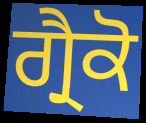
ਗ੍ਰੈਕੋ